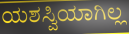
ಯಶಸ್ವಿಯಾಗಿಲ್ಲ